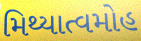
મિથ્યાત્વમોહ